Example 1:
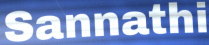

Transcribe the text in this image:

Sannathi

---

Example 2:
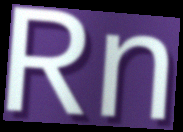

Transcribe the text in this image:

Rn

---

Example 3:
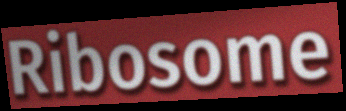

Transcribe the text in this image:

Ribosome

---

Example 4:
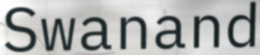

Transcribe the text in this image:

Swanand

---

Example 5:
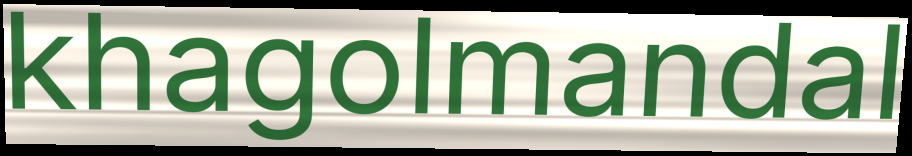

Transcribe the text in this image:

khagolmandal